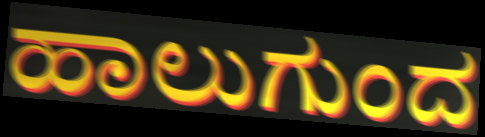
ಹಾಲುಗುಂದ